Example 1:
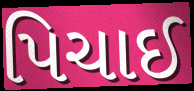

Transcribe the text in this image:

પિચાઈ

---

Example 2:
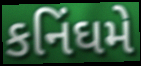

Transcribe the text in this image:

કનિંઘમે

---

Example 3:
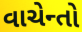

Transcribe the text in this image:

વાચેન્તો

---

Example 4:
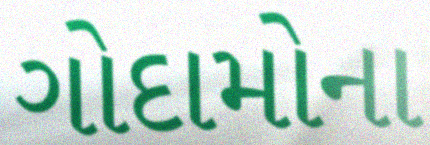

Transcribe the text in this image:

ગોદામોના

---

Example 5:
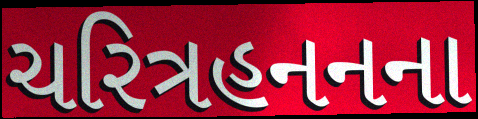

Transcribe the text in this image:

ચરિત્રહનનના